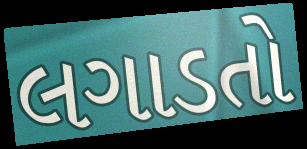
લગાડતો